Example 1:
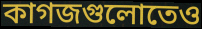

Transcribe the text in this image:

কাগজগুলোতেও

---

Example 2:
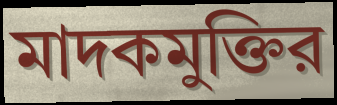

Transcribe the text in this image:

মাদকমুক্তির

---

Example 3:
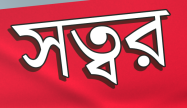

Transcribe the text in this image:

সত্বর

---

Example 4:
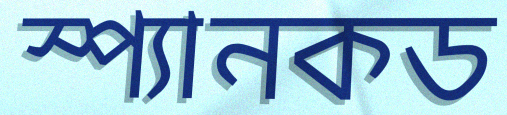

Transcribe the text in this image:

স্প্যানকড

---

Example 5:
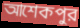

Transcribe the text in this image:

আশেকপুর